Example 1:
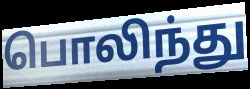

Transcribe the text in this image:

பொலிந்து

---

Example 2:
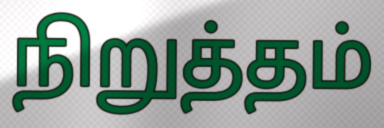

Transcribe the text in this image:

நிறுத்தம்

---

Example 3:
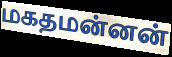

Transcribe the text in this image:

மகதமன்னன்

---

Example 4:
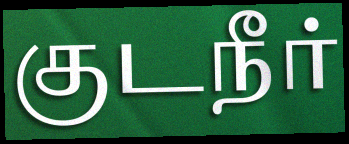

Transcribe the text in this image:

குடநீர்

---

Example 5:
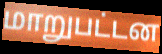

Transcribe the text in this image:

மாறுபட்டன